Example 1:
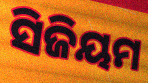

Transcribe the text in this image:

ସିଜିୟମ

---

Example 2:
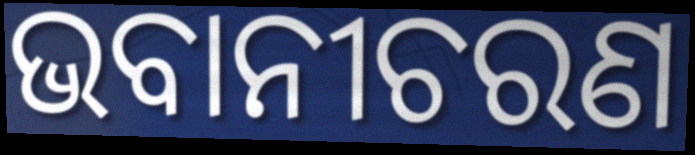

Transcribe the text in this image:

ଭବାନୀଚରଣ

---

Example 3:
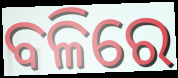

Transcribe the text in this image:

ବଳିରେ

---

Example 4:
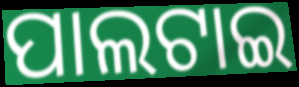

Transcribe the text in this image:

ପାଲଟାଇ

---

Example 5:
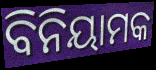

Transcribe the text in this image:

ବିନିୟାମକ